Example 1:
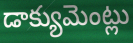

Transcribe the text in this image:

డాక్యుమెంట్లు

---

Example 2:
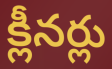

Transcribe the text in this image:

క్లీనర్లు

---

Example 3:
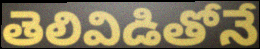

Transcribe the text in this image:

తెలివిడితోనే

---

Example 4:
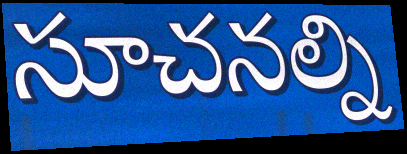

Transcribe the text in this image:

సూచనల్ని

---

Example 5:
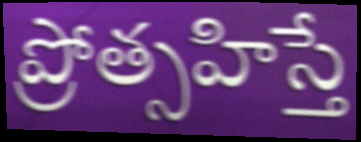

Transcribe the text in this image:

ప్రోత్సహిస్తే